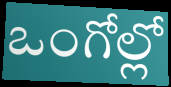
ఒంగోల్లో